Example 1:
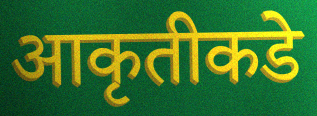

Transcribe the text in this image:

आकृतीकडे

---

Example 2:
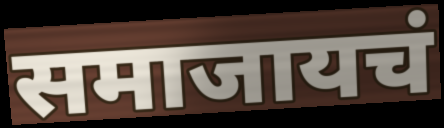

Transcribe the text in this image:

समाजायचं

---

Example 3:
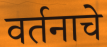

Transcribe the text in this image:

वर्तनाचे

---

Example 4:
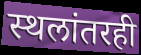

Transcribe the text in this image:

स्थलांतरही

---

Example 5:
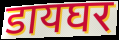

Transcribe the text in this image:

डायघर